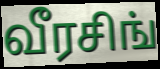
வீரசிங்